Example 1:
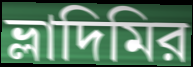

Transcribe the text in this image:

ভ্লাদিমির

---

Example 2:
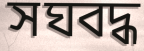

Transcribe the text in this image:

সঘবদ্ধ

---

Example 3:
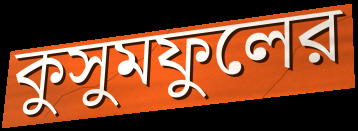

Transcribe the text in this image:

কুসুমফুলের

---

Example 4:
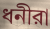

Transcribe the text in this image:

ধনীরা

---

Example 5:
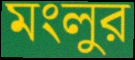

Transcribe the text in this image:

মংলুর